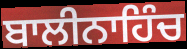
ਬਾਲੀਨਾਹਿੰਚ